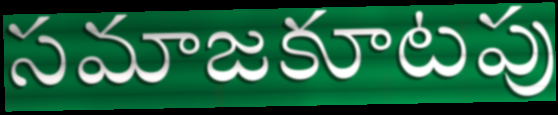
సమాజకూటపు